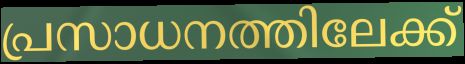
പ്രസാധനത്തിലേക്ക്